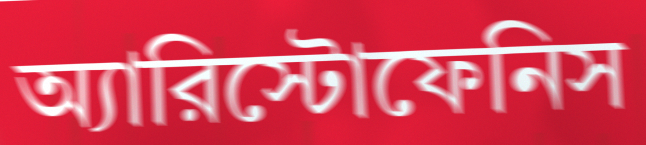
অ্যারিস্টোফেনিস